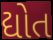
દ્યોત